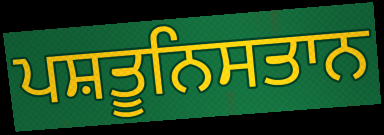
ਪਸ਼ਤੂਨਿਸਤਾਨ